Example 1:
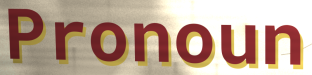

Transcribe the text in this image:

Pronoun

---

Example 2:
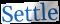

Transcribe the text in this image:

Settle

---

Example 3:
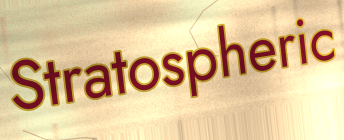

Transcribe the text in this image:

Stratospheric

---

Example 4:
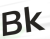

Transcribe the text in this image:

Bk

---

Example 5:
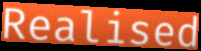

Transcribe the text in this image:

Realised